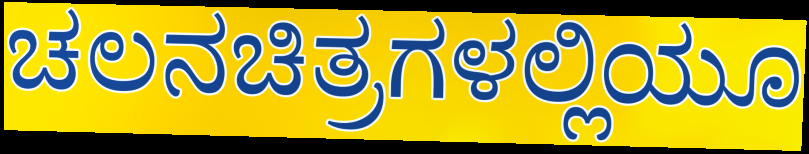
ಚಲನಚಿತ್ರಗಳಲ್ಲಿಯೂ